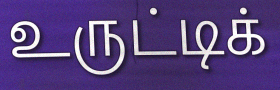
உருட்டிக்